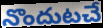
నొందుటచే